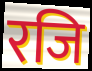
रजि